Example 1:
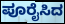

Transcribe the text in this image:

ಪೂರೈಸಿದ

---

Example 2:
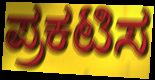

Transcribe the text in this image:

ಪ್ರಕಟಿಸ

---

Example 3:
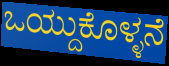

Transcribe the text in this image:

ಒಯ್ದುಕೊಳ್ಳನೆ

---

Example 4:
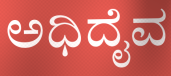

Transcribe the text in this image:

ಅಧಿದೈವ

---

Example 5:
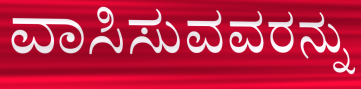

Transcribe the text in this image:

ವಾಸಿಸುವವರನ್ನು